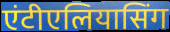
एंटीएलियासिंग